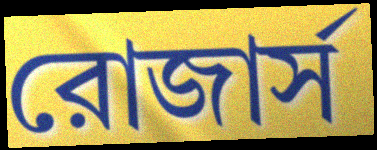
রোজার্স